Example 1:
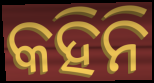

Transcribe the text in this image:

କହିନି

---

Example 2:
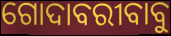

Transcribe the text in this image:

ଗୋଦାବରୀବାବୁ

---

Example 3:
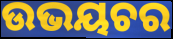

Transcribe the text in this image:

ଉଭୟଚର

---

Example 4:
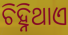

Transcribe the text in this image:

ଚିହ୍ନିଥାଏ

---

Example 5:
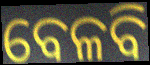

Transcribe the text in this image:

ବେଳବି